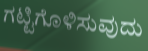
ಗಟ್ಟಿಗೊಳಿಸುವುದು